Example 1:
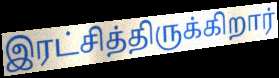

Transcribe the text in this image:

இரட்சித்திருக்கிறார்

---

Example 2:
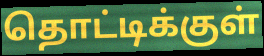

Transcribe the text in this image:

தொட்டிக்குள்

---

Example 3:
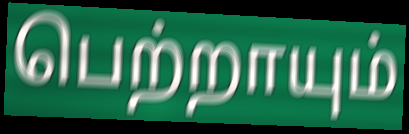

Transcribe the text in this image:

பெற்றாயும்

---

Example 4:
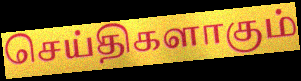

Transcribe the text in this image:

செய்திகளாகும்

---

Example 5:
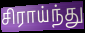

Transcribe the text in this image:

சிராய்ந்து